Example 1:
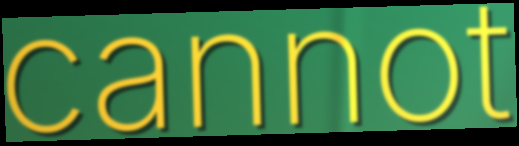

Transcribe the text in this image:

cannot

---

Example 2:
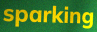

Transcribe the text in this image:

sparking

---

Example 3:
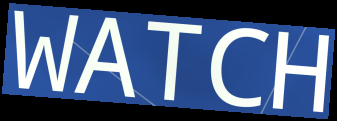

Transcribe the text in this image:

WATCH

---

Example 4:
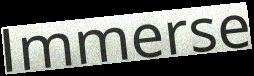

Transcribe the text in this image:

Immerse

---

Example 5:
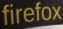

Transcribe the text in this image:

firefox